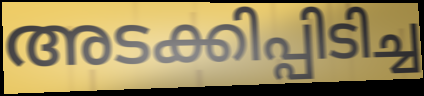
അടക്കിപ്പിടിച്ച